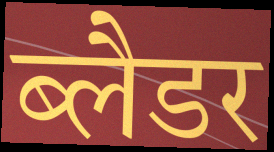
ब्लैडर